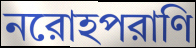
নরোহপরাণি